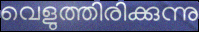
വെളുത്തിരിക്കുന്നു